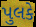
પુલકે